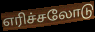
எரிச்சலோடு